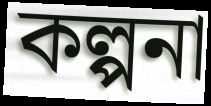
কল্পনা